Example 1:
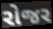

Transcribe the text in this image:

રોજર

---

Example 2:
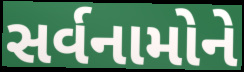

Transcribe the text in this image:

સર્વનામોને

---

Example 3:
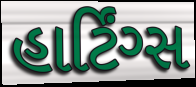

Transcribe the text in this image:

હાર્ટિંગ્સ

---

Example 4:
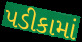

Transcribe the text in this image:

પડીકામાં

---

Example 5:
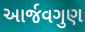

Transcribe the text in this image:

આર્જવગુણ